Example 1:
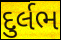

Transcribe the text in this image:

દુર્લભ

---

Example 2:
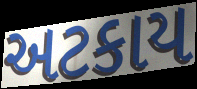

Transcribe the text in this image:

અટકાય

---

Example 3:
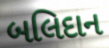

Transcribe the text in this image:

બલિદાન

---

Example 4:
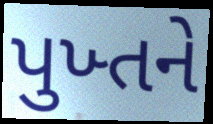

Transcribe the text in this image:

પુખ્તને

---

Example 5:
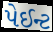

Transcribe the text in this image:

પેઈન્ટ